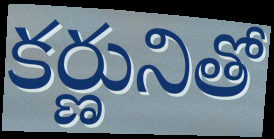
కర్ణునితో